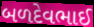
બળદેવભાઈ